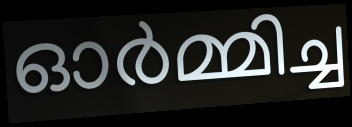
ഓർമ്മിച്ച